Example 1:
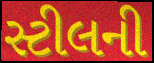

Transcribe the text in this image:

સ્ટીલની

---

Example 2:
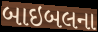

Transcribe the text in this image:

બાઇબલના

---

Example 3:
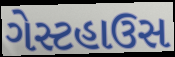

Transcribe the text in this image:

ગેસ્ટહાઉસ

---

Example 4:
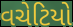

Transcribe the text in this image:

વચેટિયો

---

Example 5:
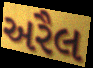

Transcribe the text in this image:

અરૈલ